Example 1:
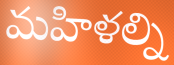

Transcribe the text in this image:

మహిళల్ని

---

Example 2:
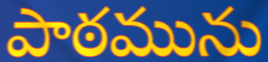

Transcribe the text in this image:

పాఠమును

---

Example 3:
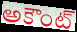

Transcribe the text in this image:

అకౌంట్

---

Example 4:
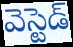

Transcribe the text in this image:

వెస్టెడ్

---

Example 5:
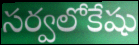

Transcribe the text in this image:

సర్వలోకేషు